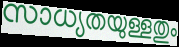
സാധ്യതയുള്ളതും